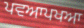
ਪਵਆਪਖਆ